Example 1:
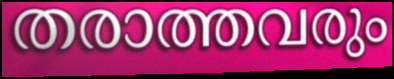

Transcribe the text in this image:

തരാത്തവരും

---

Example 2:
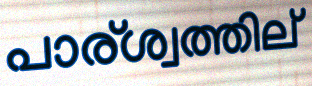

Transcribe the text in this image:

പാര്ശ്വത്തില്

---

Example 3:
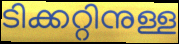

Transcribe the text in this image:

ടിക്കറ്റിനുള്ള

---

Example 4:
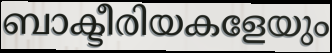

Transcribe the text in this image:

ബാക്ടീരിയകളേയും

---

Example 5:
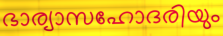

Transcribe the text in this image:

ഭാര്യാസഹോദരിയും